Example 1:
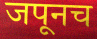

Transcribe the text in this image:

जपूनच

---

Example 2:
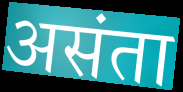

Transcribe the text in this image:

असंता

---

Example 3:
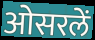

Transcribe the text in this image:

ओसरलें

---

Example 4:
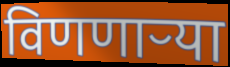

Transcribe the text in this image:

विणणाऱ्या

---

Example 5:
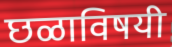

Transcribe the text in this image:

छळाविषयी